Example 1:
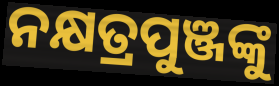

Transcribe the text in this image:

ନକ୍ଷତ୍ରପୁଞ୍ଜଙ୍କୁ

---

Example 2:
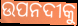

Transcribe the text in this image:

ଉପନଦୀକୁ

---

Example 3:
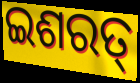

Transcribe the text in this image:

ଇଶରତ୍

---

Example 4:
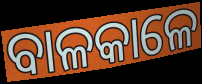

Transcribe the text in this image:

ବାଳକାଳେ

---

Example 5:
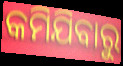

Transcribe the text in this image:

କମିଯିବାରୁ